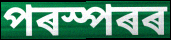
পৰস্পৰৰ